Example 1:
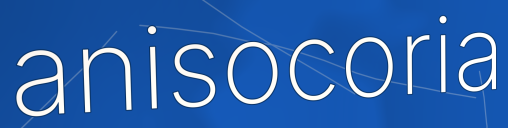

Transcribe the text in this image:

anisocoria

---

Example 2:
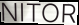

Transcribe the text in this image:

NITOR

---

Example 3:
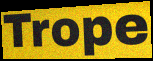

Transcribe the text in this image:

Trope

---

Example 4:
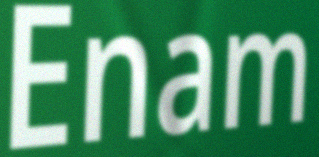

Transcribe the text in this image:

Enam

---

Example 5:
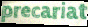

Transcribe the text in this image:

precariat